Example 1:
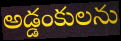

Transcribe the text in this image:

అడ్డంకులను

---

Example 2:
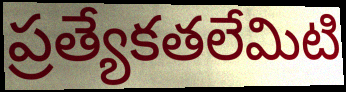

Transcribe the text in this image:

ప్రత్యేకతలేమిటి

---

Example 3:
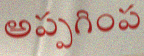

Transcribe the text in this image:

అప్పగింప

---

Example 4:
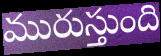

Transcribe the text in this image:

మురుస్తుంది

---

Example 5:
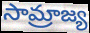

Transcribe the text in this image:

సామ్రాజ్య